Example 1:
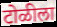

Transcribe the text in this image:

टोळीला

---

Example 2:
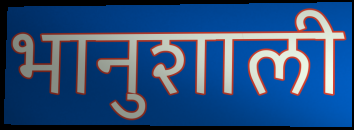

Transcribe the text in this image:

भानुशाली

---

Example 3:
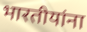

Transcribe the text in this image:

भारतीयांना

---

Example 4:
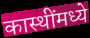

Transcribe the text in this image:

कास्थींमध्ये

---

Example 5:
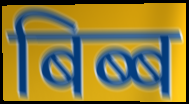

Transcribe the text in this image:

बिब्ब